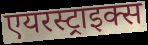
एयरस्ट्राइक्स